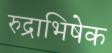
रुद्राभिषेक